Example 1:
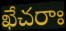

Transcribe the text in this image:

ఖేచరాః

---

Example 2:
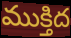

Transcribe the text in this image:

ముక్తిద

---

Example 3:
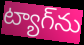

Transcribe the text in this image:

ట్యాగ్‌ను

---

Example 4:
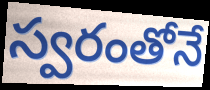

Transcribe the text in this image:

స్వరంతోనే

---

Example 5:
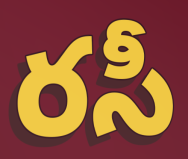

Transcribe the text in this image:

రసీ